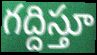
గద్దిస్తూ